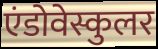
एंडोवेस्कुलर